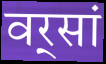
वर्सां